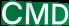
CMD